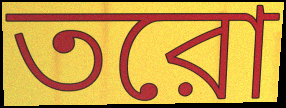
তরো